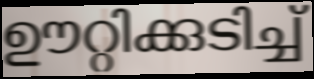
ഊറ്റിക്കുടിച്ച്